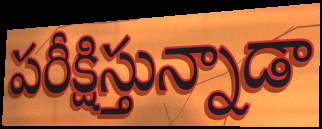
పరీక్షిస్తున్నాడా